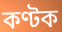
কণ্টক